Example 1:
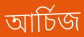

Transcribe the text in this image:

আর্চিজ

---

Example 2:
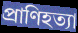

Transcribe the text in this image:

প্রাণিহত্যা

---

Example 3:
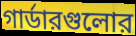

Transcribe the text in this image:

গার্ডারগুলোর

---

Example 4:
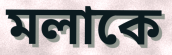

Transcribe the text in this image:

মলাকে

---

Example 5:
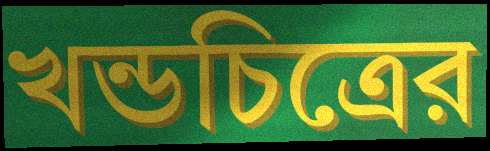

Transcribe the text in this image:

খন্ডচিত্রের